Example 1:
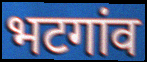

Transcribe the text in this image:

भटगांव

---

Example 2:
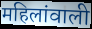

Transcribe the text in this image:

महिलांवाली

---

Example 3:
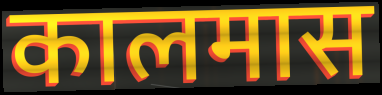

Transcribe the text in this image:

कालमास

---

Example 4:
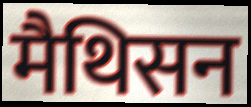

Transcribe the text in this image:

मैथिसन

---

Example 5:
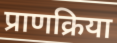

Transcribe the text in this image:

प्राणक्रिया